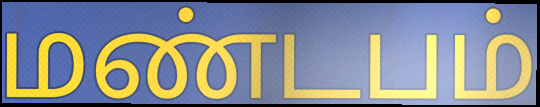
மண்டபம்